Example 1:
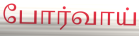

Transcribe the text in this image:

போர்வாய்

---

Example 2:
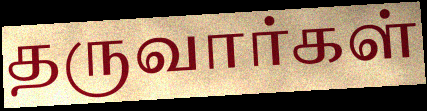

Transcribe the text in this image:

தருவார்கள்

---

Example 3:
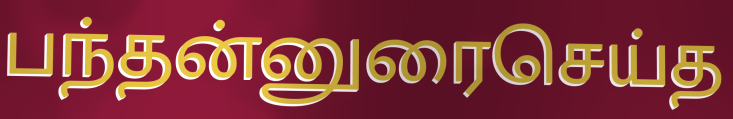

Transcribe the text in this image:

பந்தன்னுரைசெய்த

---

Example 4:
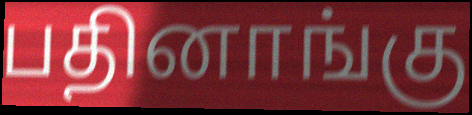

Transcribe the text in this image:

பதினாங்கு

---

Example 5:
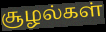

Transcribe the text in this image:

சூழல்கள்